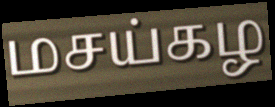
மசய்கழ